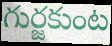
గుర్జకుంట